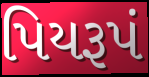
પિયરૂપં